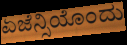
ಏಜೆನ್ಸಿಯೊಂದು